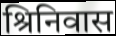
श्रिनिवास